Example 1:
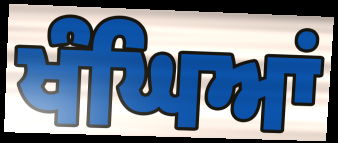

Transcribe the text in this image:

ਖੰਘਿਆਂ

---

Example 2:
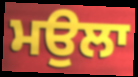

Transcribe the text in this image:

ਮਉਲਾ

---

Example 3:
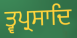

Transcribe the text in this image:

ਤ੍ਵਪ੍ਰਸਾਦਿ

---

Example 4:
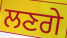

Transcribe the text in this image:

ਲਣਗੇ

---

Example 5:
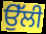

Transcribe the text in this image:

ਉੱਲੀ